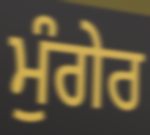
ਮੁੰਗੇਰ